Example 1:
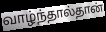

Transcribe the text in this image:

வாழ்ந்தால்தான்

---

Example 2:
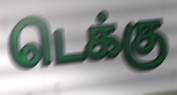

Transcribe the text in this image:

டெக்கு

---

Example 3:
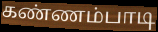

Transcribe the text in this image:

கண்ணம்பாடி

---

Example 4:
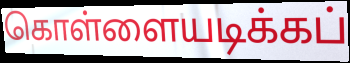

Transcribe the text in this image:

கொள்ளையடிக்கப்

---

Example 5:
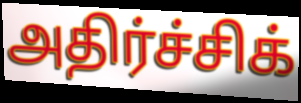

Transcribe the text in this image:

அதிர்ச்சிக்